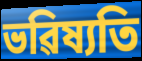
ভৱিষ্যতি